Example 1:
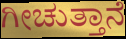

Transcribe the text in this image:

ಗೀಚುತ್ತಾನೆ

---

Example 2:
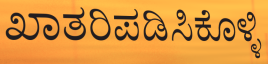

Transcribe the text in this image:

ಖಾತರಿಪಡಿಸಿಕೊಳ್ಳಿ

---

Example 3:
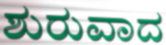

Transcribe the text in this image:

ಶುರುವಾದ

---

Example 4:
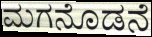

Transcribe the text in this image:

ಮಗನೊಡನೆ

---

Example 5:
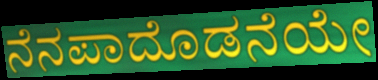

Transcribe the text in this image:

ನೆನಪಾದೊಡನೆಯೇ